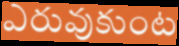
ఎరువుకుంట